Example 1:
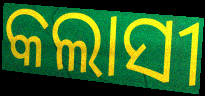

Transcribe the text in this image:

କଲାସୀ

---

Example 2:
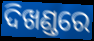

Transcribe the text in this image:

ଦିଖଣ୍ଡରେ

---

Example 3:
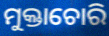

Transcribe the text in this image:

ମୁକ୍ତାଚୋରି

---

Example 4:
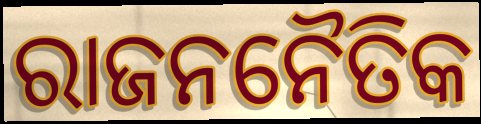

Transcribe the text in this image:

ରାଜନନୈତିକ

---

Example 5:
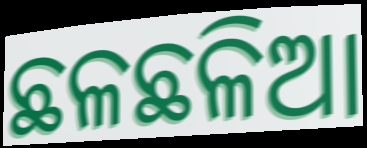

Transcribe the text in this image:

ଛଳଛଳିଆ